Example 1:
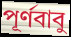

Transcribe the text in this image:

পূর্ণবাবু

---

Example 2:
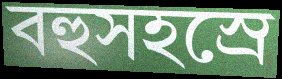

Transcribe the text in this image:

বহুসহস্রে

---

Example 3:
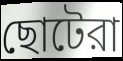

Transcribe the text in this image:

ছোটেরা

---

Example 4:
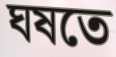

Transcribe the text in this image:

ঘষতে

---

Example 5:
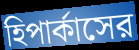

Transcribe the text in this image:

হিপার্কাসের